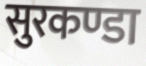
सुरकण्डा